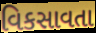
વિકસાવતા